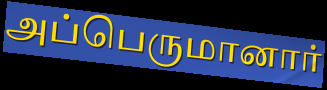
அப்பெருமானார்